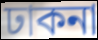
ঢাকনা